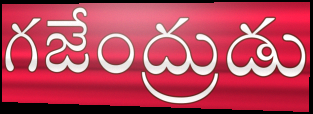
గజేంద్రుడు